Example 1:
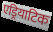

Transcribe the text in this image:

एड्रियाटिक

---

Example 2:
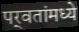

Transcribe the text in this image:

पर्वतांमध्ये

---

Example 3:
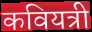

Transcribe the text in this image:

कवियत्री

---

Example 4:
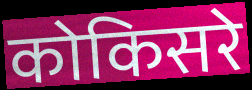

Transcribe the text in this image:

कोकिसरे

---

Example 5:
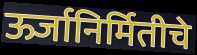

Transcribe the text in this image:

ऊर्जानिर्मितीचे